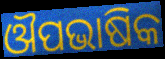
ଔପଭାଷିକ